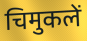
चिमुकलें